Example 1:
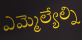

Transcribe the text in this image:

ఎమ్మెల్యేల్ని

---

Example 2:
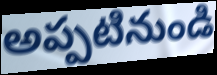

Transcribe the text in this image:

అప్పటినుండి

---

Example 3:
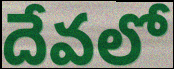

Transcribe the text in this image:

దేవలో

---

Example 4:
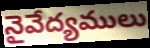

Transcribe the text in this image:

నైవేద్యములు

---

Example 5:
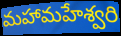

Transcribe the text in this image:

మహామహేశ్వరి